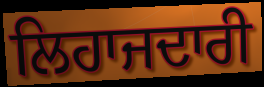
ਲਿਹਾਜਦਾਰੀ